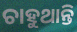
ଚାହୁଥାନ୍ତି